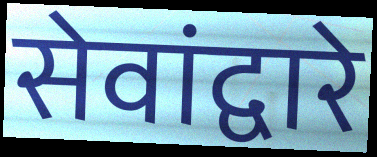
सेवांद्वारे